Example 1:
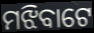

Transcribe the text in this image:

ମଝିବାଟେ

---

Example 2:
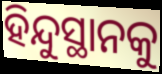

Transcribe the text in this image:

ହିନ୍ଦୁସ୍ଥାନକୁ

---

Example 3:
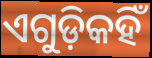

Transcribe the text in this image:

ଏଗୁଡ଼ିକହିଁ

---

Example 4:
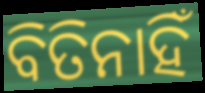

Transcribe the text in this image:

ବିତିନାହିଁ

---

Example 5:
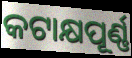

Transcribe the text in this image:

କଟାକ୍ଷପୂର୍ଣ୍ଣ